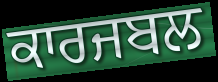
ਕਾਰਜਬਲ